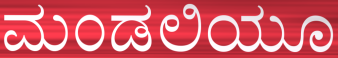
ಮಂಡಲಿಯೂ